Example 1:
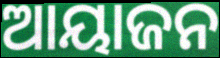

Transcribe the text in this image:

ଆୟାଜନ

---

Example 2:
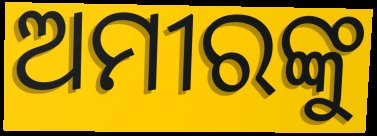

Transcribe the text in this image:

ଅମୀରଙ୍କୁ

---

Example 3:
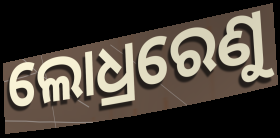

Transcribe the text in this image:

ଲୋଧ୍ରରେଣୁ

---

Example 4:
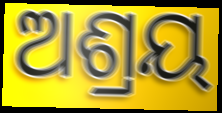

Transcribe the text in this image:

ଅଶ୍ରୟ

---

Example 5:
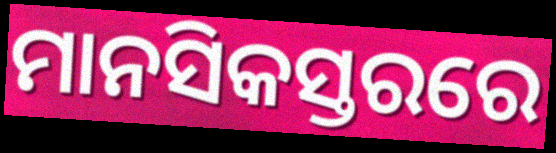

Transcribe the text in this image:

ମାନସିକସ୍ତରରେ